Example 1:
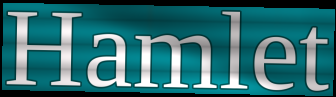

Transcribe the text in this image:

Hamlet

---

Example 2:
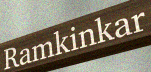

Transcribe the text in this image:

Ramkinkar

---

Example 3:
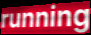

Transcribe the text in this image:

running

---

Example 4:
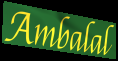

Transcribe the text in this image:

Ambalal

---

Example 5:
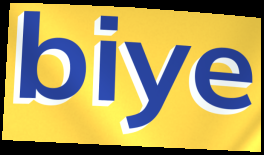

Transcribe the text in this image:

biye